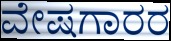
ವೇಷಗಾರರ